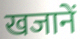
खजानें